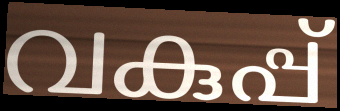
വകുപ്പ്